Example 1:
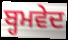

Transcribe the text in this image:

ਬ੍ਹਮਵੇਦ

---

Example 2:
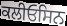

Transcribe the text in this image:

ਕਲੀਓਸਿਨ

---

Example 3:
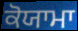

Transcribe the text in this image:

ਕੋਯਾਮਾ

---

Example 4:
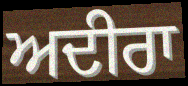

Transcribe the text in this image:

ਅਦੀਰਾ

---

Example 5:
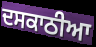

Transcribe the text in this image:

ਦਸਕਾਠੀਆ